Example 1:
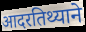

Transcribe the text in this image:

आदरतिथ्याने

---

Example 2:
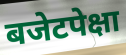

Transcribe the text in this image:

बजेटपेक्षा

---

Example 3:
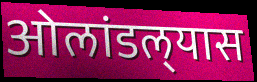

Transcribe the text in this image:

ओलांडल्यास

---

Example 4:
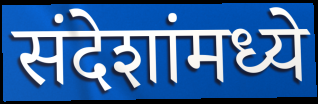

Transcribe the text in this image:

संदेशांमध्ये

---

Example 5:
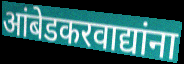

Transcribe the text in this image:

आंबेडकरवाद्यांना